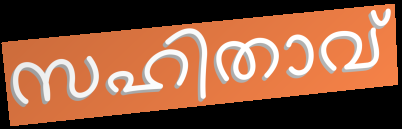
സഹിതാവ്